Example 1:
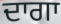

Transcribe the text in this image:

ਦਾਗਾ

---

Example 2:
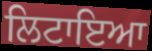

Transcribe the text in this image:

ਲਿਟਾਇਆ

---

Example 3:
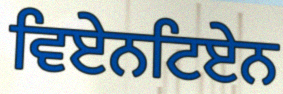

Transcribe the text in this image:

ਵਿਏਨਟਿਏਨ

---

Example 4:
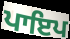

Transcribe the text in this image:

ਪਾਇਪ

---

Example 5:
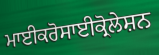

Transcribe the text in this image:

ਮਾਈਕਰੋਸਾਈਕ੍ਰੋਲੇਸ਼ਨ